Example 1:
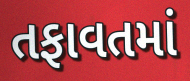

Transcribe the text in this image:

તફાવતમાં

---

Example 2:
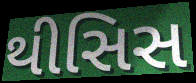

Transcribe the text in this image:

થીસિસ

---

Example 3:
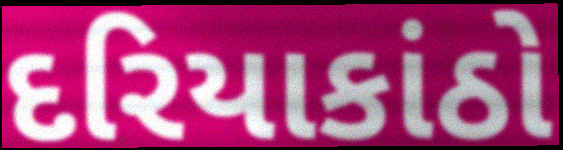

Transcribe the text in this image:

દરિયાકાંઠો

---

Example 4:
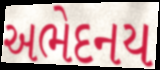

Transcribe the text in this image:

અભેદનય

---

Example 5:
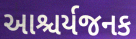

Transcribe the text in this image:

આશ્ચર્યજનક